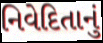
નિવેદિતાનું